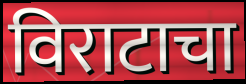
विराटाचा